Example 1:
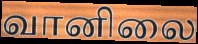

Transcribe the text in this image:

வானிலை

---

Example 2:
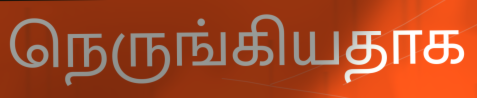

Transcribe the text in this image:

நெருங்கியதாக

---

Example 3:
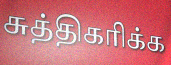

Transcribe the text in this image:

சுத்திகரிக்க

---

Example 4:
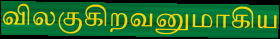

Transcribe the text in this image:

விலகுகிறவனுமாகிய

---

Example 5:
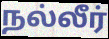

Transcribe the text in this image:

நல்லீர்